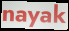
nayak